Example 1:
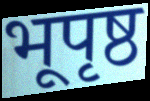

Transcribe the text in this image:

भूपृष्ठ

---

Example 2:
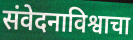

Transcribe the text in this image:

संवेदनाविश्वाचा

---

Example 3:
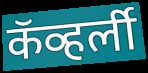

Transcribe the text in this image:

कॅव्हर्ली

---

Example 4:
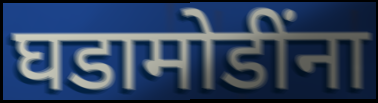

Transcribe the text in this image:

घडामोडींना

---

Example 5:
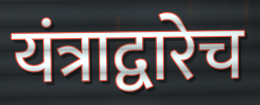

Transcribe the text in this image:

यंत्राद्वारेच